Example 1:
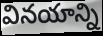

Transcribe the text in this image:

వినయాన్ని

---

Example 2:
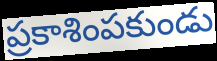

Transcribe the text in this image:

ప్రకాశింపకుండు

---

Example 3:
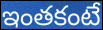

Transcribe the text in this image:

ఇంతకంటే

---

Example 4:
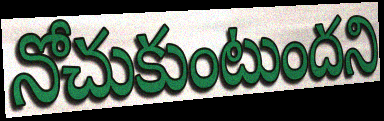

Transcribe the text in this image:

నోచుకుంటుందని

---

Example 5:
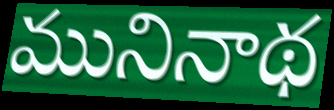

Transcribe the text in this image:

మునినాథ